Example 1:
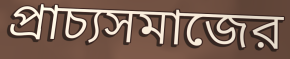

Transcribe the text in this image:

প্রাচ্যসমাজের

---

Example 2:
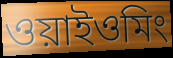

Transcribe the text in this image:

ওয়াইওমিং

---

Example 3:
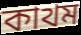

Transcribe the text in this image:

কাথম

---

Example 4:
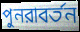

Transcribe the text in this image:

পুনরাবর্তন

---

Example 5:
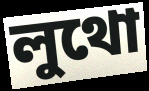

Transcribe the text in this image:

লুথো